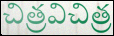
చిత్రవిచిత్ర